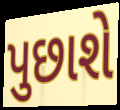
પુછાશે